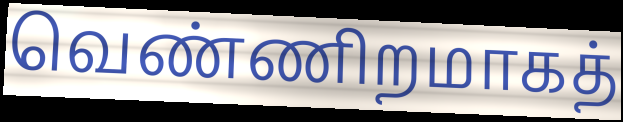
வெண்ணிறமாகத்